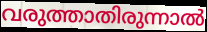
വരുത്താതിരുന്നാൽ